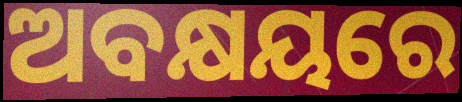
ଅବକ୍ଷୟରେ